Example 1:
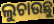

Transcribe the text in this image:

ଲୁଚାଉଛୁ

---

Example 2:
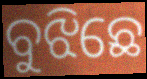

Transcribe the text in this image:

ବୁଝିଛେ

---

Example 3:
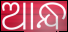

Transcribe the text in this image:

ଆନ୍ଧ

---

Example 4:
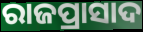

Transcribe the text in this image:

ରାଜପ୍ରାସାଦ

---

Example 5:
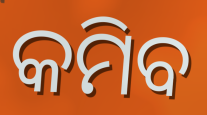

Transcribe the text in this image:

କମିବ